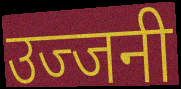
उज्जनी